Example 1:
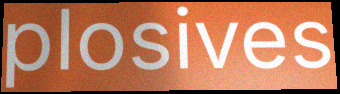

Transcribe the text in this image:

plosives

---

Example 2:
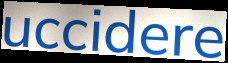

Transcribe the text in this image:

uccidere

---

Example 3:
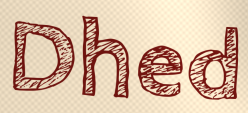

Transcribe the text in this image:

Dhed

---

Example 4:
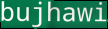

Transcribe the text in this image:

bujhawi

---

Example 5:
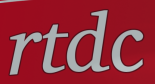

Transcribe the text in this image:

rtdc